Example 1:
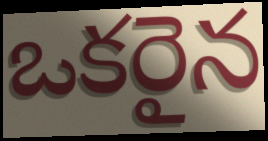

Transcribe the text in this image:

ఒకరైన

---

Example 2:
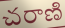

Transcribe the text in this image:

చరాణి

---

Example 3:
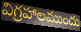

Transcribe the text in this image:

విగ్రహాలముందు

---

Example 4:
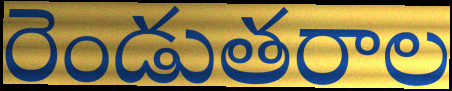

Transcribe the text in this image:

రెండుతరాల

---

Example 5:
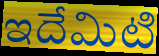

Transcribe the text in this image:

ఇదేమిటి